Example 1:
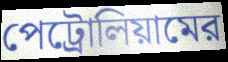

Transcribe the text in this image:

পেট্রোলিয়ামের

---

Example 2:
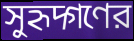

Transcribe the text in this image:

সুহৃদ্গণের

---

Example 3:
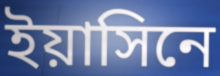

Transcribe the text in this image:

ইয়াসিনে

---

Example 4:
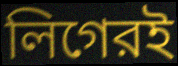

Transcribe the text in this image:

লিগেরই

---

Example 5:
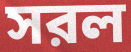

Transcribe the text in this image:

সরল